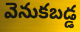
వెనుకబడ్డ